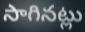
సాగినట్లు